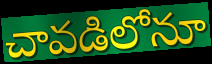
చావడిలోనూ